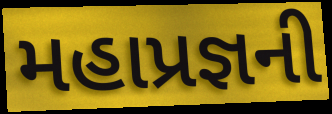
મહાપ્રજ્ઞની